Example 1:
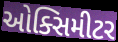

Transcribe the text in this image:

ઓક્સિમીટર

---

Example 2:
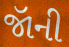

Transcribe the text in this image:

જૉની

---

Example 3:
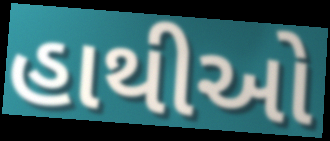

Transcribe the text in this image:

હાથીઓ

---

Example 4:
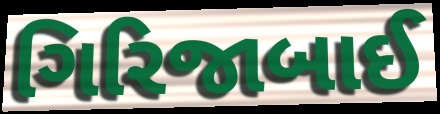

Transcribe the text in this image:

ગિરિજાબાઈ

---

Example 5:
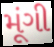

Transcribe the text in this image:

મૂંગી